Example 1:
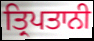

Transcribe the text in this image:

ਤ੍ਰਿਪਤਾਨੀ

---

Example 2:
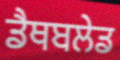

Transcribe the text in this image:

ਡੈਥਬਲੇਡ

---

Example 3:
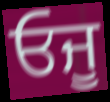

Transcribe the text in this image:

ਓਜੂ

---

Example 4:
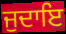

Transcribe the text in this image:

ਜੁਦਾਇ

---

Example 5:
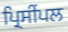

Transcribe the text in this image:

ਪ੍ਰਿਸੀਂਪਲ